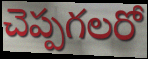
చెప్పగలరో